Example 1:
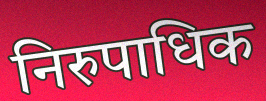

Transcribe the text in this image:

निरुपाधिक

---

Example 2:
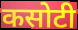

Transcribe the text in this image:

कसोटी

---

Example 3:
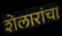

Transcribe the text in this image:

शेलारांचा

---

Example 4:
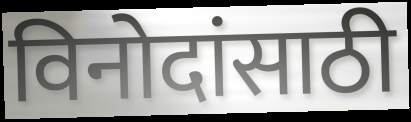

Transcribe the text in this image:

विनोदांसाठी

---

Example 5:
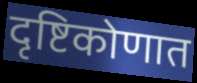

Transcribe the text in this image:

दृष्टिकोणात